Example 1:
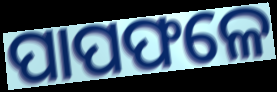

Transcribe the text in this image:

ପାପଫଳେ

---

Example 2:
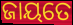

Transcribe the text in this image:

ଜାୟତେ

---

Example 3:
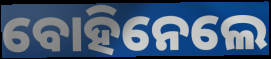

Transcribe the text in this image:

ବୋହିନେଲେ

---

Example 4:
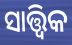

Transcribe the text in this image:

ସାତ୍ତ୍ବିକ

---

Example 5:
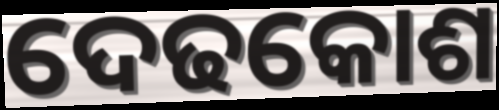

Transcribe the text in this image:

ଦେଢକୋଶ